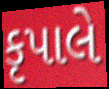
કૃપાલે